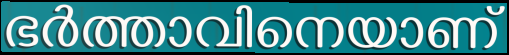
ഭർത്താവിനെയാണ്